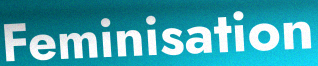
Feminisation